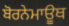
ਬੋਰਨੇਮਾਊਥ